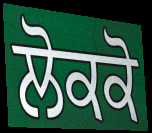
ਲੋਕਕੋ